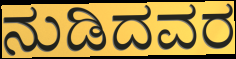
ನುಡಿದವರ